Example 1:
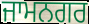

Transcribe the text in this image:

ਜਾਮਨਗਰ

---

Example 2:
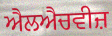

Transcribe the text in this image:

ਐਲਐਚਵੀਜ਼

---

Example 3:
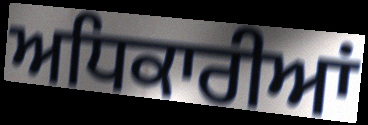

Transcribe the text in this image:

ਅਧਿਕਾਰੀਆਂ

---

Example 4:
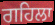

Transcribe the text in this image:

ਗਹਿਲਾ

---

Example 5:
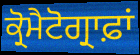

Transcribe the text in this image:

ਕ੍ਰੋਮੈਟੋਗ੍ਰਾਫ਼ਾਂ